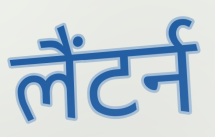
लैंटर्न